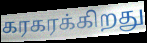
கரகரக்கிறது